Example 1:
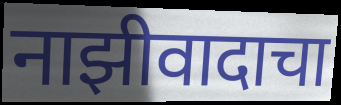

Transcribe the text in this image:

नाझीवादाचा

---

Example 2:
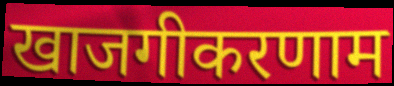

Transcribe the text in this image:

खाजगीकरणाम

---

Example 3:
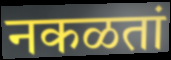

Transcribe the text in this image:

नकळतां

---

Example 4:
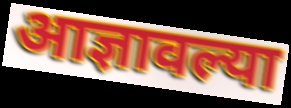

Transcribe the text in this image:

आज्ञावल्या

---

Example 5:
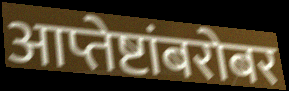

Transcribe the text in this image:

आप्तेष्टांबरोबर